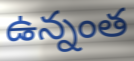
ఉన్నంత